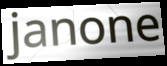
janone